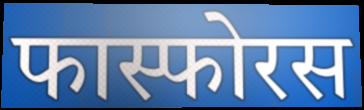
फास्फोरस